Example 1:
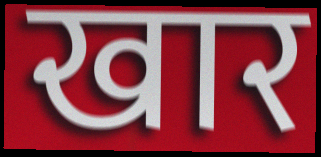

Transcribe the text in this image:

खार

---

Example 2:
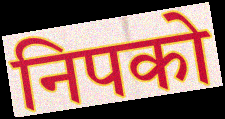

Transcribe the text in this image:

निपको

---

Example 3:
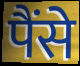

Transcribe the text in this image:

पैंसे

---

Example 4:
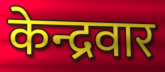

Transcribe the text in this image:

केन्द्रवार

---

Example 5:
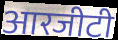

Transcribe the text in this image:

आरजीटी